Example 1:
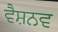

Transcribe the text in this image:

ਵੈਸ਼ਨਵ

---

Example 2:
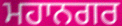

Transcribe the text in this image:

ਮਹਾਨਗਰ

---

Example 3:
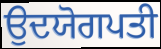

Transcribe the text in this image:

ਉਦਯੋਗਪਤੀ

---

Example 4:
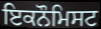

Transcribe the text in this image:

ਇਕਨੌਮਿਸਟ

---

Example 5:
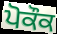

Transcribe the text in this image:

ਪੋਕੌਕ